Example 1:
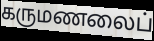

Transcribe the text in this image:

கருமணலைப்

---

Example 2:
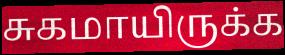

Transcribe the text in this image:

சுகமாயிருக்க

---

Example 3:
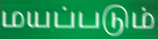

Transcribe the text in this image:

மயப்படும்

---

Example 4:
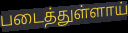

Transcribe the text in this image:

படைத்துள்ளாய்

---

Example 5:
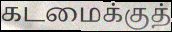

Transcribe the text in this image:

கடமைக்குத்